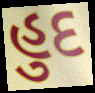
હુદ